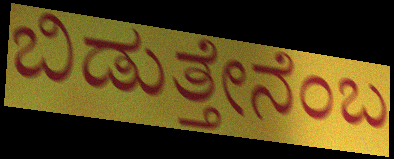
ಬಿಡುತ್ತೇನೆಂಬ